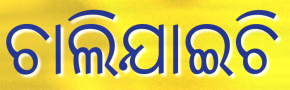
ଚାଲିଯାଇଚି